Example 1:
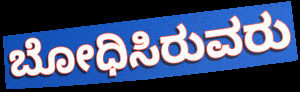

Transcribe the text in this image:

ಬೋಧಿಸಿರುವರು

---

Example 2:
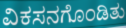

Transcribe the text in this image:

ವಿಕಸನಗೊಂಡಿತು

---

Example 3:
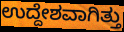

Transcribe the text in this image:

ಉದ್ದೇಶವಾಗಿತ್ತು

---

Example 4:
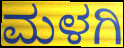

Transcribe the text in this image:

ಮಳಗಿ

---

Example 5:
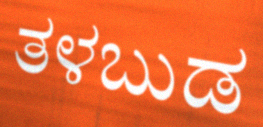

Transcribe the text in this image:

ತಳಬುಡ